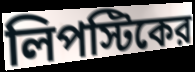
লিপস্টিকের